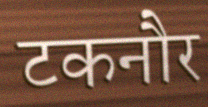
टकनौर